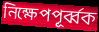
নিক্ষেপপূর্ব্বক